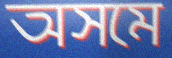
অসমে